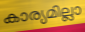
കാര്യമില്ലാ